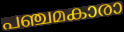
പഞ്ചമകാരാ